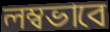
লম্বভাবে